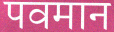
पवमान